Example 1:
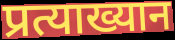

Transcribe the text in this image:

प्रत्याख्यान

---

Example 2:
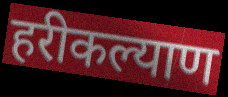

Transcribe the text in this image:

हरीकल्याण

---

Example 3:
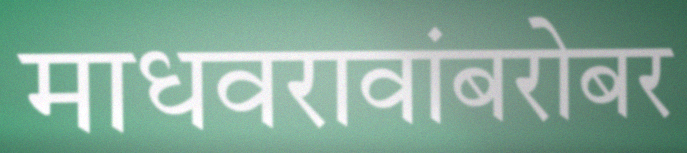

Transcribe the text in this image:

माधवरावांबरोबर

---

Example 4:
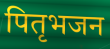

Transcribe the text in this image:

पितृभजन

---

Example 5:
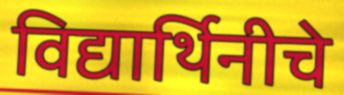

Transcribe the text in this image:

विद्यार्थिनीचे